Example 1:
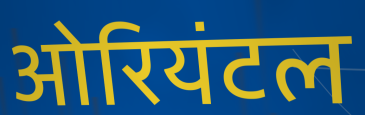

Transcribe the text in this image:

ओरियंटल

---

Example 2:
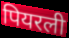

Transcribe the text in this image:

पियरली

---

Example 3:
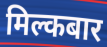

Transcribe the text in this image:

मिल्कबार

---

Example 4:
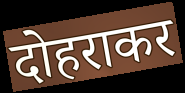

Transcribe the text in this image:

दोहराकर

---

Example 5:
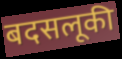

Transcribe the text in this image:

बदसलूकी